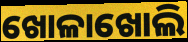
ଖୋଳାଖୋଲି